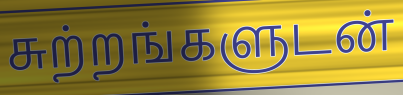
சுற்றங்களுடன்